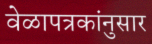
वेळापत्रकांनुसार